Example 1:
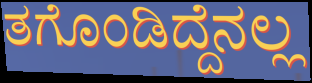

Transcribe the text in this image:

ತಗೊಂಡಿದ್ದೆನಲ್ಲ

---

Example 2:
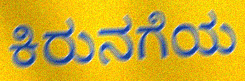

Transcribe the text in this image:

ಕಿರುನಗೆಯ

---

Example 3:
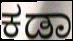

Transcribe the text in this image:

ಕಡಾ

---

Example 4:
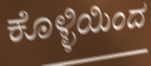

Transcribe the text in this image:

ಕೊಳ್ಳಿಯಿಂದ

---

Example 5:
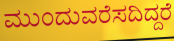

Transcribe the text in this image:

ಮುಂದುವರೆಸದಿದ್ದರೆ